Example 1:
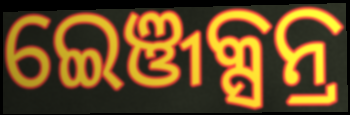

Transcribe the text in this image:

ଇେଞ୍ଜକ୍ସନ୍ର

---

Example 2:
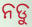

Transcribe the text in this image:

ନଡୁ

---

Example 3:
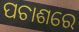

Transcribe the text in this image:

ପଚାଶରେ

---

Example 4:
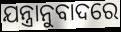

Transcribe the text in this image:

ଯନ୍ତ୍ରାନୁବାଦରେ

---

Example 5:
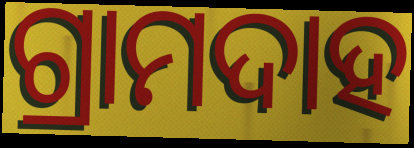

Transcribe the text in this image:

ଗ୍ରାମଦାହ